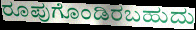
ರೂಪುಗೊಂಡಿರಬಹುದು